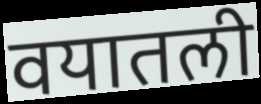
वयातली